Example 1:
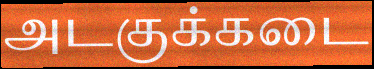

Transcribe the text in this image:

அடகுக்கடை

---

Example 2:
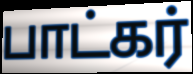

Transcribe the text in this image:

பாட்கர்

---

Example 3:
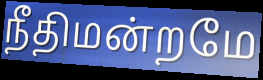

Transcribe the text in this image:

நீதிமன்றமே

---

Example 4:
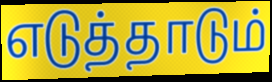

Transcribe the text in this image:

எடுத்தாடும்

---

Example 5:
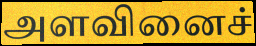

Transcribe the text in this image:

அளவினைச்